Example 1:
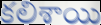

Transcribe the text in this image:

కలిశాయి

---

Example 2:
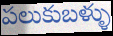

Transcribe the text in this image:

పలుకుబళ్ళు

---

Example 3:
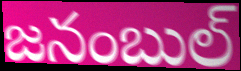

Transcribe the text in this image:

జనంబుల్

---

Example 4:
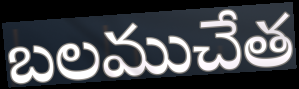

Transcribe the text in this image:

బలముచేత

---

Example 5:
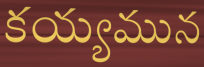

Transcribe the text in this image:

కయ్యమున